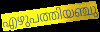
എഴുപത്തിയഞ്ചു